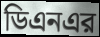
ডিএনএর